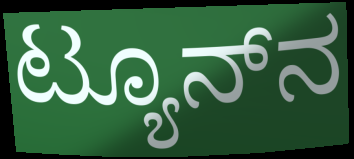
ಟ್ಯೂನ್‌ನ